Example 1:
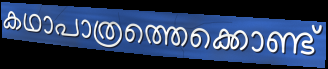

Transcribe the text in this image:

കഥാപാത്രത്തെക്കൊണ്ട്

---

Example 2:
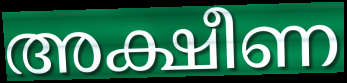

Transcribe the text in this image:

അക്ഷീണ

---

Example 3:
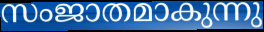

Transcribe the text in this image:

സംജാതമാകുന്നു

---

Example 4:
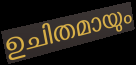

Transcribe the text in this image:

ഉചിതമായും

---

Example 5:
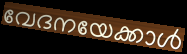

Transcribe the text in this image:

വേദനയേക്കാൾ